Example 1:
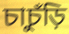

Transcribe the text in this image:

চাচুঁড়ি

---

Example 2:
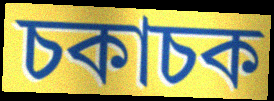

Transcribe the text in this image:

চকাচক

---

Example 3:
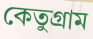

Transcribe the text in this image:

কেতুগ্রাম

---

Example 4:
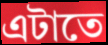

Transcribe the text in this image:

এটাতে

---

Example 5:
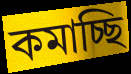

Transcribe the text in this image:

কমাচ্ছি